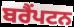
ਬਰੈਂਪਟਨ